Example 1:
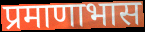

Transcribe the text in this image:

प्रमाणाभास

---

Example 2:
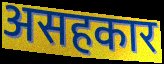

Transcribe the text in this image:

असहकार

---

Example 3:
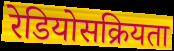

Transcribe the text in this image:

रेडियोसक्रियता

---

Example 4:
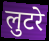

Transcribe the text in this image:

लुटरे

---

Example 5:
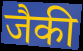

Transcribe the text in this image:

जैकी